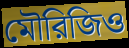
মৌরিজিও